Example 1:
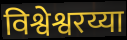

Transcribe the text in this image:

विश्वेश्वरय्या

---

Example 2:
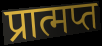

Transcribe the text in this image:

प्रात्मप्त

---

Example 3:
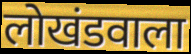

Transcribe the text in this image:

लोखंडवाला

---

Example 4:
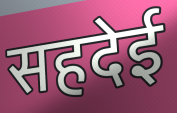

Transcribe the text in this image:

सहदेई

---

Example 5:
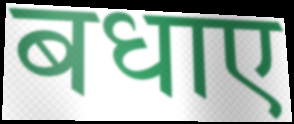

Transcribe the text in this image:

बधाए